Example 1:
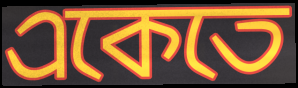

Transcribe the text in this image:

একেতে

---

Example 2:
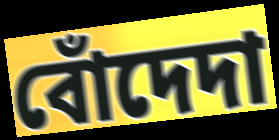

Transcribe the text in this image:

বোঁদেদা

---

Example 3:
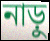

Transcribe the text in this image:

নাড়ু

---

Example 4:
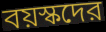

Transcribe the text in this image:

বয়স্কদের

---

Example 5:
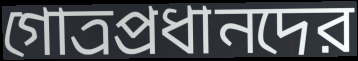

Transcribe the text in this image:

গোত্রপ্রধানদের